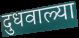
दुधवाल्या